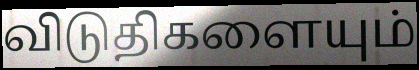
விடுதிகளையும்